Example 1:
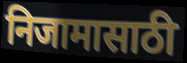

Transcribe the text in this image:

निजामासाठी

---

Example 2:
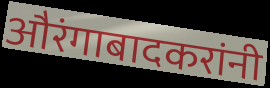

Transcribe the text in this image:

औरंगाबादकरांनी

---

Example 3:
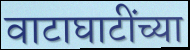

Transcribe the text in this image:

वाटाघाटींच्या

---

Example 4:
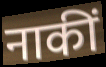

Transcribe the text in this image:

नाकीं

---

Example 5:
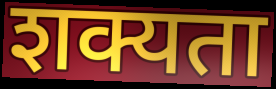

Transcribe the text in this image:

शक्यता